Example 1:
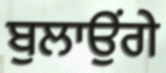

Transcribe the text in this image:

ਬੁਲਾਉਂਗੇ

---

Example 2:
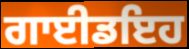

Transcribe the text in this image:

ਗਾਈਡਇਹ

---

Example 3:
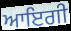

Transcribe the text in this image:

ਆਇਗੀ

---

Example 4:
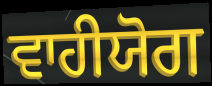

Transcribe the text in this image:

ਵਾਹੀਯੋਗ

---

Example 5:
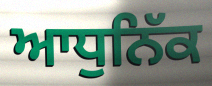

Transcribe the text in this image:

ਆਧੁਨਿੱਕ